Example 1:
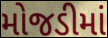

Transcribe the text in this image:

મોજડીમાં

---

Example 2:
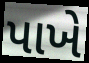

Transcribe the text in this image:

પાખે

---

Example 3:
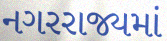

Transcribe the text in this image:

નગરરાજ્યમાં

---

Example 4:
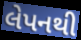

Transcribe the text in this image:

લેપનથી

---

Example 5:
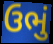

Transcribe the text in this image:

ઉભું